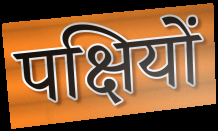
पक्षियों